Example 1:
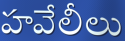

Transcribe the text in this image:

హవేలీలు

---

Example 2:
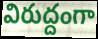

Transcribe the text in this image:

విరుద్దంగా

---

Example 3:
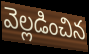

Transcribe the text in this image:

వెల్లడించిన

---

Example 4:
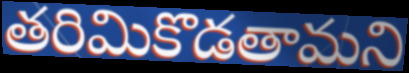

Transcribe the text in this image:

తరిమికొడతామని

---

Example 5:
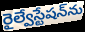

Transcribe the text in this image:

రైల్వేస్టేషన్‌ను